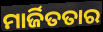
ମାର୍ଜିତତାର